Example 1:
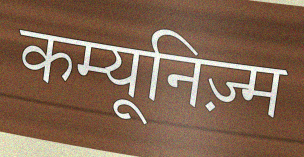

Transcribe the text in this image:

कम्यूनिज़्म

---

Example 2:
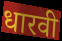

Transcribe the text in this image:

धारवी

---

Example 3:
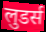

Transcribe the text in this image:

लुडर्स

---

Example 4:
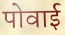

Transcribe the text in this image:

पोवाई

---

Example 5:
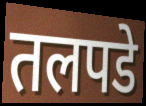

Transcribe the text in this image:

तलपडे